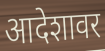
आदेशावर